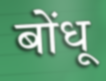
बोंधू